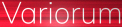
Variorum